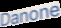
Danone